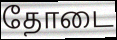
தோடை